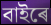
বাইৰে